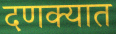
दणक्यात